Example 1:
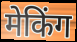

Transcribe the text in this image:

मेकिंग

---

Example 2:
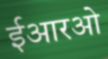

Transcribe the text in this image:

ईआरओ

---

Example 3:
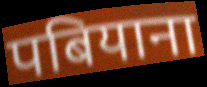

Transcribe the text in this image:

पबियाना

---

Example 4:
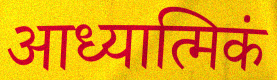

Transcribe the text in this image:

आध्यात्मिकं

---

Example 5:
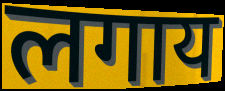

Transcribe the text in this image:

लगाय